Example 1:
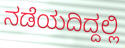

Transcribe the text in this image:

ನಡೆಯದಿದ್ದಲ್ಲಿ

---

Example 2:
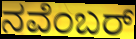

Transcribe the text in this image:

ನವೆಂಬರ್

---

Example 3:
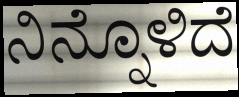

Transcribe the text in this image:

ನಿನ್ನೊಳಿದೆ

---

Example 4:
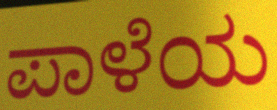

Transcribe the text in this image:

ಪಾಳೆಯ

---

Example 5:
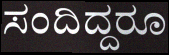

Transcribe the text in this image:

ಸಂದಿದ್ದರೂ